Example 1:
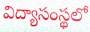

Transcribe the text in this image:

విద్యాసంస్థలో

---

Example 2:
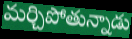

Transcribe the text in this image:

మర్చిపోతున్నాడు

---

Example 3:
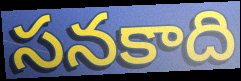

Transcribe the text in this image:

సనకాది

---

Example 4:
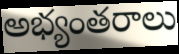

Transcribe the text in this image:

అభ్యంతరాలు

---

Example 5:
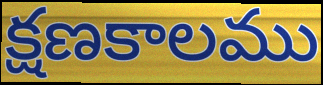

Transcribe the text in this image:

క్షణకాలము